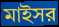
মাইসর